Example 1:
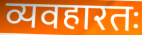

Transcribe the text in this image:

व्यवहारतः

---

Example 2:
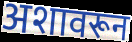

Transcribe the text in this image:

अशावरून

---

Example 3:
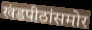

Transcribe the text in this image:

खंडपीठांसमोर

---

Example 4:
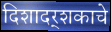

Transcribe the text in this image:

दिशादर्शकाचे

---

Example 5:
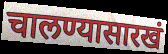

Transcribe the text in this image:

चालण्यासारखं